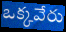
ఒక్కవేరు